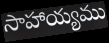
సాహాయ్యము